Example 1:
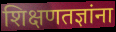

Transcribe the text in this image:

शिक्षणतज्ञांना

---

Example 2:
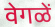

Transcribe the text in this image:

वेगळें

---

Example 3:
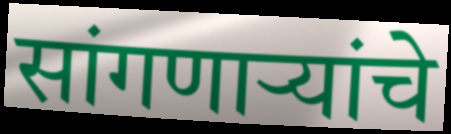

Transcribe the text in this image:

सांगणार्‍यांचे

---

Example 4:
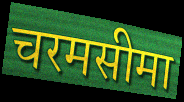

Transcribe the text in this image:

चरमसीमा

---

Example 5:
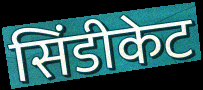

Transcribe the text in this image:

सिंडीकेट